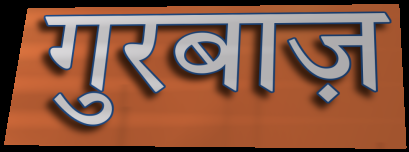
गुरबाज़